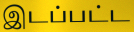
இடப்பட்ட